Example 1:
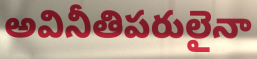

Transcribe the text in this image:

అవినీతిపరులైనా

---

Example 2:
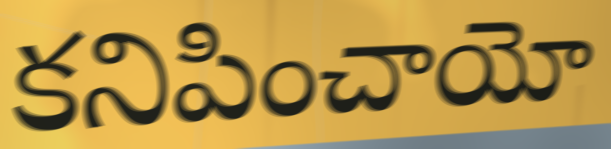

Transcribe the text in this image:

కనిపించాయో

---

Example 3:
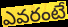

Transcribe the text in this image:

ఎవరంటే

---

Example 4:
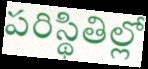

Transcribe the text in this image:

పరిస్థితిల్లో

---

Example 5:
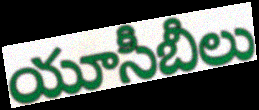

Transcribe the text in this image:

యూసీబీలు